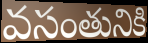
వసంతునికి